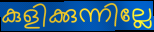
കുളിക്കുന്നില്ലേ